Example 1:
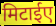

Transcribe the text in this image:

मिटाईए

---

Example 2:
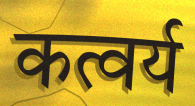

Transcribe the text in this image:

कत्वर्य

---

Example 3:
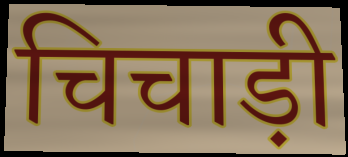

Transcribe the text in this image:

चिचाड़ी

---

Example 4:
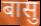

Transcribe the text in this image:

बासु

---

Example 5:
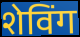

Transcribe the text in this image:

शेविंग